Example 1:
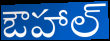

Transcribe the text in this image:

ఔహాల్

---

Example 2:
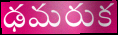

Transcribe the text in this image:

ఢమరుక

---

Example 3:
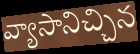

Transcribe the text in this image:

వ్యాసానిచ్చిన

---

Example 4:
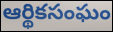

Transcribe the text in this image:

ఆర్థికసంఘం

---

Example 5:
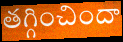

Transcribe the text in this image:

తగ్గించిందా